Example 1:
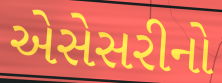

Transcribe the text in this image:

એસેસરીનો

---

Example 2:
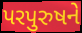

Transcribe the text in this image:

પરપુરુષને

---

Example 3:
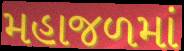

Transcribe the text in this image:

મહાજળમાં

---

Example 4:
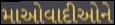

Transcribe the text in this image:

માઓવાદીઓને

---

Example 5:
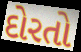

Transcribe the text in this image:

દોરતો